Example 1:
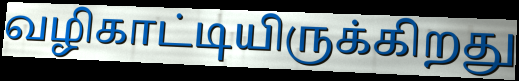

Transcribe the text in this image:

வழிகாட்டியிருக்கிறது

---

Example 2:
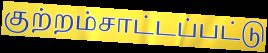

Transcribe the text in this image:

குற்றம்சாட்டப்பட்டு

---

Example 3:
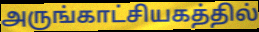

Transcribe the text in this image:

அருங்காட்சியகத்தில்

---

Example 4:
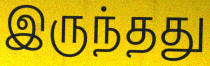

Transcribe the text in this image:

இருந்தது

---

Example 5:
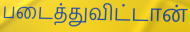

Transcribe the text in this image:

படைத்துவிட்டான்